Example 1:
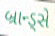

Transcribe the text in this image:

બ્રાન્ડ્સે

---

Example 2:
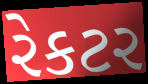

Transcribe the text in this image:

રેકટર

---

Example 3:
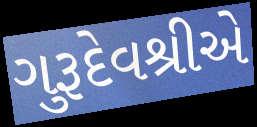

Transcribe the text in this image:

ગુરૂદેવશ્રીએ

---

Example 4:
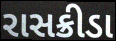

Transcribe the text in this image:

રાસક્રીડા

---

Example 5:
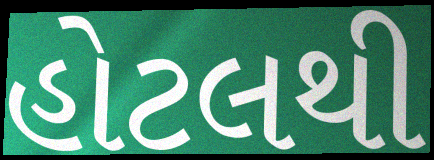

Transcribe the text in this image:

હોટલથી